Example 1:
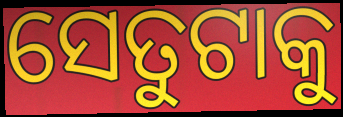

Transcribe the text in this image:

ସେତୁଟାକୁ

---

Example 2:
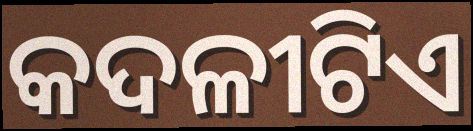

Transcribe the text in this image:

କଦଳୀଟିଏ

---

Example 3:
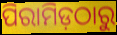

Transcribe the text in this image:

ପିରାମିଡ଼ଠାରୁ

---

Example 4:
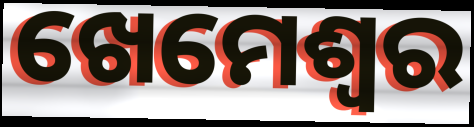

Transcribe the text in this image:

ଖେମେଶ୍ଵର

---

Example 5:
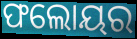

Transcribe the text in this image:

ଫଲୋୟର